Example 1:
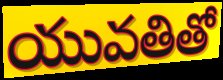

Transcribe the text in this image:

యువతితో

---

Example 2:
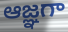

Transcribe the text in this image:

ఆజ్ఞగా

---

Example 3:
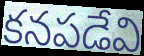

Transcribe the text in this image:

కనపడేవి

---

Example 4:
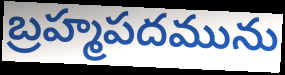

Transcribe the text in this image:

బ్రహ్మపదమును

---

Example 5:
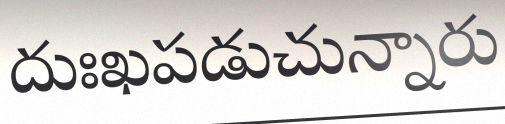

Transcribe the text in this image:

దుఃఖపడుచున్నారు